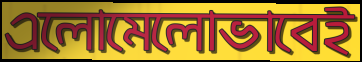
এলোমেলোভাবেই